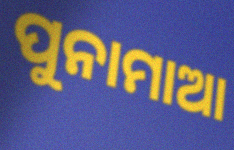
ପୁନାମାଆ